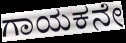
ಗಾಯಕನೇ